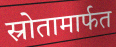
स्रोतामार्फत